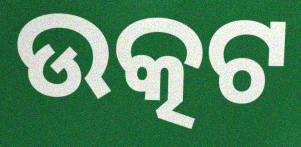
ଉତ୍କଟ